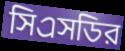
সিএসডির